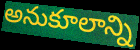
అనుకూలాన్ని